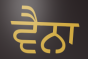
ਵੈਨਾ